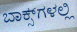
ಬಾಕ್ಸ್‌ಗಳಲ್ಲಿ